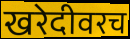
खरेदीवरच